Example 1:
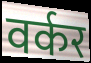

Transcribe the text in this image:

वर्कर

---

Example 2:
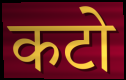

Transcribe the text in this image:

कटो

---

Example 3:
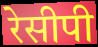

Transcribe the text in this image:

रेसीपी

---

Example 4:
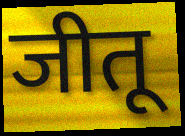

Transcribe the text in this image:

जीतू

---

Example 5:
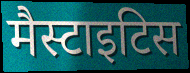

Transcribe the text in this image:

मैस्टाइटिस